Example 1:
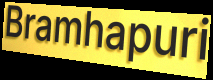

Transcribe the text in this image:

Bramhapuri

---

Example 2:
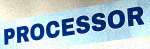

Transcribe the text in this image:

PROCESSOR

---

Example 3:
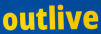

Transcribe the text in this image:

outlive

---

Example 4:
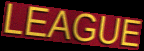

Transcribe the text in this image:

LEAGUE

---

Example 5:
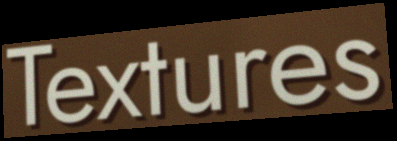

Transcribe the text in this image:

Textures